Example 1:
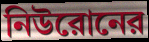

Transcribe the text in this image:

নিউরোনের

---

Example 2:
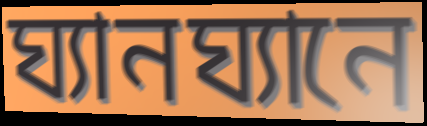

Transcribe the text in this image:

ঘ্যানঘ্যানে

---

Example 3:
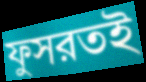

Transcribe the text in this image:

ফুসরতই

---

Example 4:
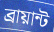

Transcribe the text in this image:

ব্রায়ান্ট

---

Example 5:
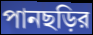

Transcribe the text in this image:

পানছড়ির